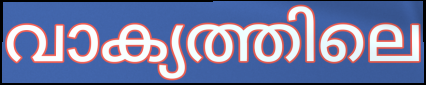
വാക്യത്തിലെ